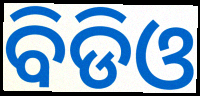
ବିଡିଓ